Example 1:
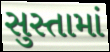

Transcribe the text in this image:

સુસ્તામાં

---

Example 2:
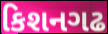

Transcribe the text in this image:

કિશનગઢ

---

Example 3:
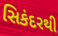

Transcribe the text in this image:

સિકંદરથી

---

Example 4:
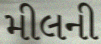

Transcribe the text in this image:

મીલની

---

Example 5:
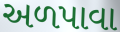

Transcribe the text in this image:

અળપાવા